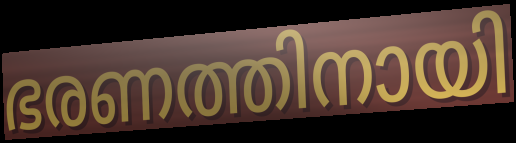
ഭരണത്തിനായി